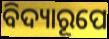
ବିଦ୍ୟାରୂପେ